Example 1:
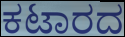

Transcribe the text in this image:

ಕಟಾರದ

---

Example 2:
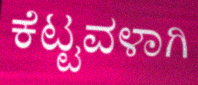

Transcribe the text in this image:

ಕೆಟ್ಟವಳಾಗಿ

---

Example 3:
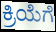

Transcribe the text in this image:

ಕ್ರಿಯೆಗೆ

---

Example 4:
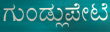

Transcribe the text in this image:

ಗುಂಡ್ಲುಪೇಟೆ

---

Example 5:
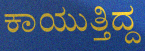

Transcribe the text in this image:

ಕಾಯುತ್ತಿದ್ದ